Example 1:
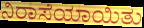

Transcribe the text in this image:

ನಿರಾಸೆಯಾಯಿತು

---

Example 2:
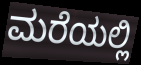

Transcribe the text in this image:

ಮರೆಯಲ್ಲಿ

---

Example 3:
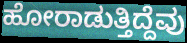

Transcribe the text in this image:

ಹೋರಾಡುತ್ತಿದ್ದೆವು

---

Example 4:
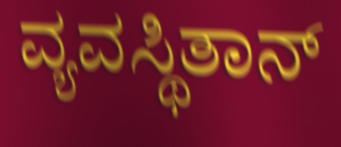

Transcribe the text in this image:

ವ್ಯವಸ್ಥಿತಾನ್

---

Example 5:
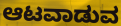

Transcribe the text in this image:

ಆಟವಾಡುವ